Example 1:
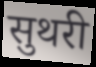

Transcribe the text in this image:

सुथरी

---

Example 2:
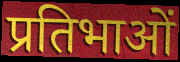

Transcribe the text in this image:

प्रतिभाओं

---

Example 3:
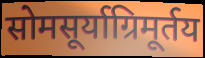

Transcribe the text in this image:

सोमसूर्याग्रिमूर्तय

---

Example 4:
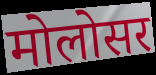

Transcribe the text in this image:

मोलोसर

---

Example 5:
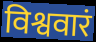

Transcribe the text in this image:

विश्ववारं